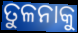
ତୁଳନାକୁ